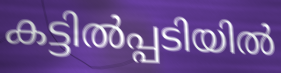
കട്ടിൽപ്പടിയിൽ